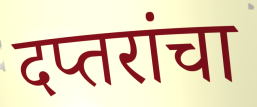
दप्तरांचा